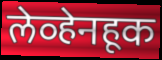
लेव्हेनहूक